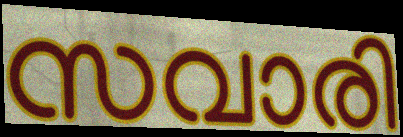
സവാരി